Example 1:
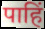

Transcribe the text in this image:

पाहिं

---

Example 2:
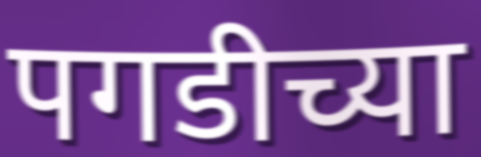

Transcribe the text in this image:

पगडीच्या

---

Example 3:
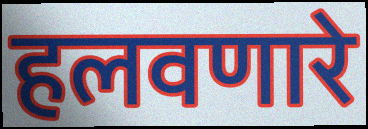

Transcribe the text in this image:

हलवणारे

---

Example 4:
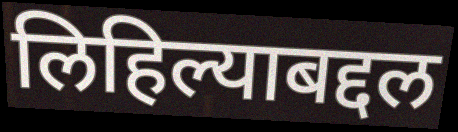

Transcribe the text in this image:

लिहिल्याबद्दल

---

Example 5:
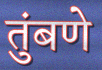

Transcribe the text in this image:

तुंबणे